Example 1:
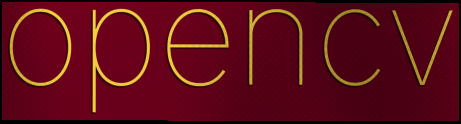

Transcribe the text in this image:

opencv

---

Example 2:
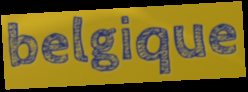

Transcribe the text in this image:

belgique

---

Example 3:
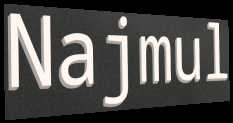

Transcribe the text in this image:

Najmul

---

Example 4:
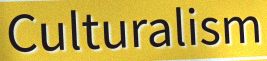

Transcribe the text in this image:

Culturalism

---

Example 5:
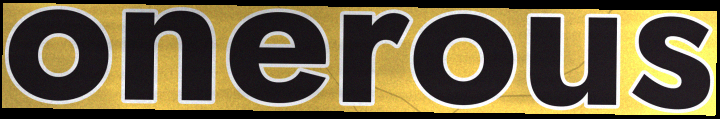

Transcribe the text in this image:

onerous